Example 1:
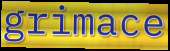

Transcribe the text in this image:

grimace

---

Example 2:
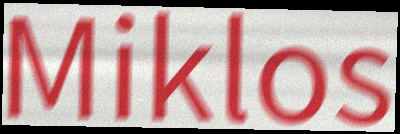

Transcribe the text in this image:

Miklos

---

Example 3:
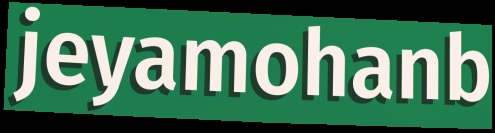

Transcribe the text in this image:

jeyamohanb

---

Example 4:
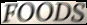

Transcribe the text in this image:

FOODS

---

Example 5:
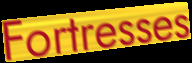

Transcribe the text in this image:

Fortresses